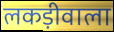
लकड़ीवाला